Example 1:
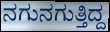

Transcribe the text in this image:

ನಗುನಗುತ್ತಿದ್ದ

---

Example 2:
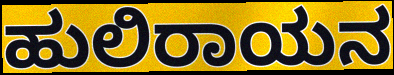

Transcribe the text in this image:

ಹುಲಿರಾಯನ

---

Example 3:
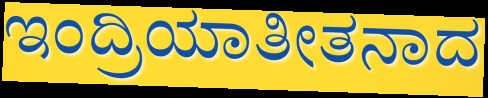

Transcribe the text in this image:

ಇಂದ್ರಿಯಾತೀತನಾದ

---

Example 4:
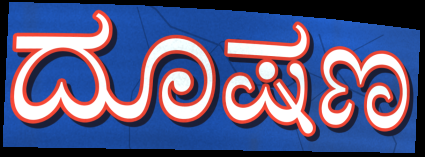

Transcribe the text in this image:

ದೂಷಣ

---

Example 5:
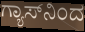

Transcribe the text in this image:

ಗ್ಯಾಸ್‌ನಿಂದ